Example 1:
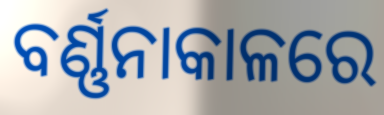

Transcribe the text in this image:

ବର୍ଣ୍ଣନାକାଳରେ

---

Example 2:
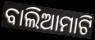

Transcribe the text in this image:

ବାଲିଆମାଟି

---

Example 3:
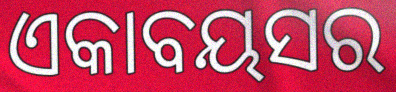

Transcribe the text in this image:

ଏକାବୟସର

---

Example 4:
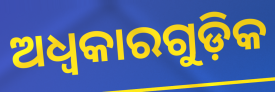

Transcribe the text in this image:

ଅଧ୍ବକାରଗୁଡ଼ିକ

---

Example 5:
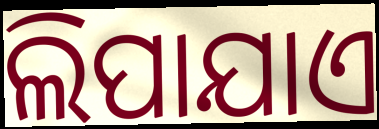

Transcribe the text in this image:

ଲିପାଯାଏ